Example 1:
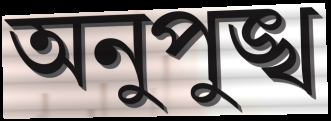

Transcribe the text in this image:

অনুপুঙ্খ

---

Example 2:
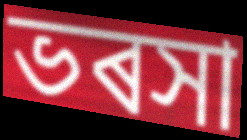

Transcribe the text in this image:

ভৰসা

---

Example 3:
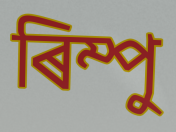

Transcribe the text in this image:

ৰিম্পু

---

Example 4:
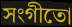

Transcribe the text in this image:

সংগীতো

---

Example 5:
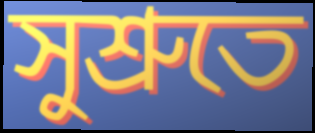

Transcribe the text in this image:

সুশ্ৰুতে